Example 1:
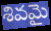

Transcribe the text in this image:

శివమై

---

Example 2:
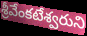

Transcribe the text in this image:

శ్రీవేంకటేశ్వరుని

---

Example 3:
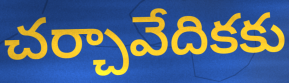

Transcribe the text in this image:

చర్చావేదికకు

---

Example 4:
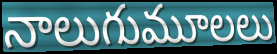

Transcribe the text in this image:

నాలుగుమూలలు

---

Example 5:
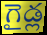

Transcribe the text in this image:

గైడ్ల